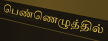
பெண்ணெழுத்தில்